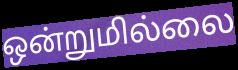
ஒன்றுமில்லை